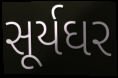
સૂર્યઘર